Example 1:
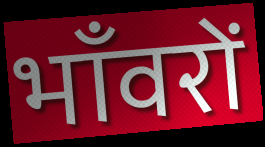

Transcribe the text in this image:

भाँवरों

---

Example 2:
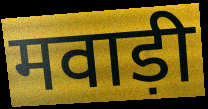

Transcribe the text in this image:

मवाड़ी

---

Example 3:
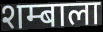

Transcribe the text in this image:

शम्बाला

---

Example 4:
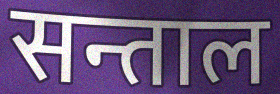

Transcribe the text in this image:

सन्ताल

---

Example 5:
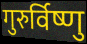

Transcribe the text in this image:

गुरुर्विष्णु